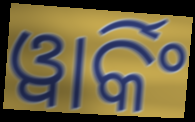
ୱାର୍କିଂ